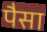
पैसा